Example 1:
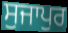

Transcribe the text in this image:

ਸੁਜਾਪੁਰ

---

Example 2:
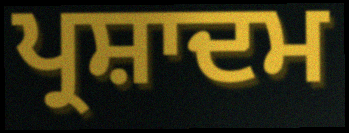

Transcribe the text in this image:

ਪ੍ਰਸ਼ਾਦਮ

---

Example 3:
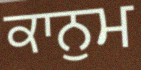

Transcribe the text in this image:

ਕਾਨੁਮ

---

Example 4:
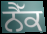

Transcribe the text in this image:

ਨੈੱਕ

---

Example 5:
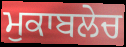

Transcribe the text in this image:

ਮੁਕਾਬਲੇਚ